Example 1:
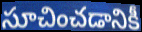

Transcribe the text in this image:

సూచించడానికీ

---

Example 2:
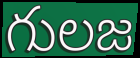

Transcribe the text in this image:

గులజ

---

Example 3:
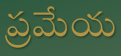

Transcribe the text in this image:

ప్రమేయ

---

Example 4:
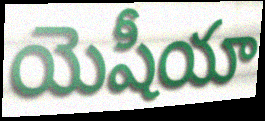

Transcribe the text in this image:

యెషీయా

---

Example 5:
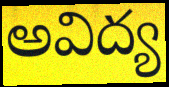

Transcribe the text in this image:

అవిద్య